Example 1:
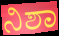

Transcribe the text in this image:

ನಿಶಾ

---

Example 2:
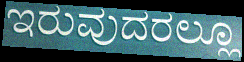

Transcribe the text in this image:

ಇರುವುದರಲ್ಲೂ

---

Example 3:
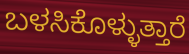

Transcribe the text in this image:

ಬಳಸಿಕೊಳ್ಳುತ್ತಾರೆ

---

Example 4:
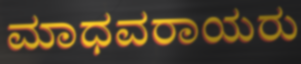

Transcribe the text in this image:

ಮಾಧವರಾಯರು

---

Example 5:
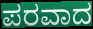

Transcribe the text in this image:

ಪರವಾದ